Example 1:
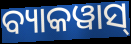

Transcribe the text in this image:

ବ୍ୟାକୱାସ୍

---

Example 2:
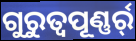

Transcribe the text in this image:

ଗୁରୁତ୍ୱପୂଣ୍ଣର୍ର୍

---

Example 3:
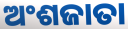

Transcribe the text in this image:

ଅଂଶଜାତା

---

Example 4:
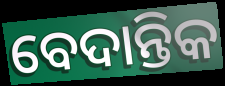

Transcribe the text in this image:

ବେଦାନ୍ତିକ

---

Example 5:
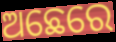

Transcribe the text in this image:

ଅଛେରେ